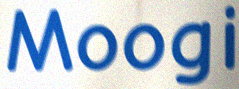
Moogi